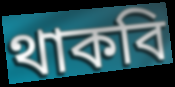
থাকবি